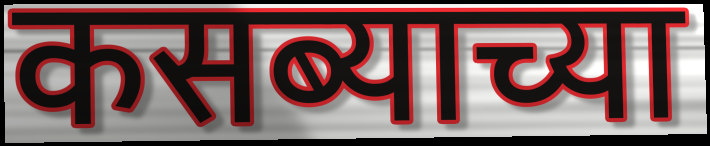
कसब्याच्या